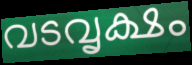
വടവൃക്ഷം